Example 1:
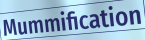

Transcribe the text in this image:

Mummification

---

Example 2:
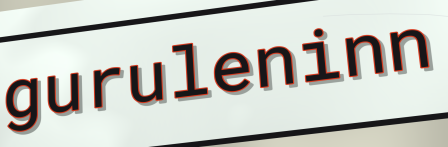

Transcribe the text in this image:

guruleninn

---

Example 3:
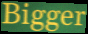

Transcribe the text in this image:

Bigger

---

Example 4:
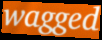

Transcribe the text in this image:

wagged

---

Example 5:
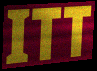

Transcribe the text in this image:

ITT